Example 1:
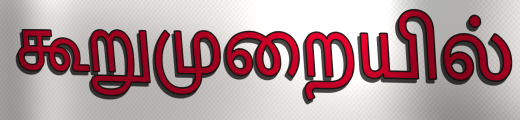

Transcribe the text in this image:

கூறுமுறையில்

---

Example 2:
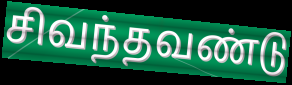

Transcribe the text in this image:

சிவந்தவண்டு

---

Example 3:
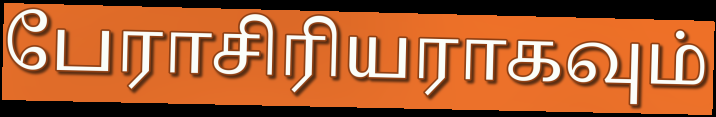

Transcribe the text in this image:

பேராசிரியராகவும்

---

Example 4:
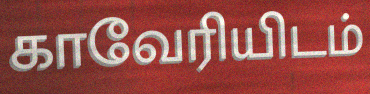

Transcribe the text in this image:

காவேரியிடம்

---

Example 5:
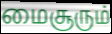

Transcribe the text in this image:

மைசூரும்